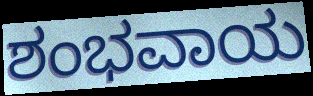
ಶಂಭವಾಯ